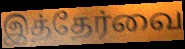
இத்தேர்வை